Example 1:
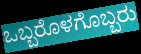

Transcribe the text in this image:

ಒಬ್ಬರೊಳಗೊಬ್ಬರು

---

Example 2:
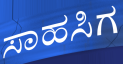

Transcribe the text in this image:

ಸಾಹಸಿಗ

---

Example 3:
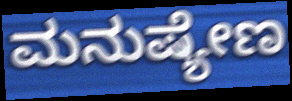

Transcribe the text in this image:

ಮನುಷ್ಯೇಣ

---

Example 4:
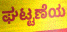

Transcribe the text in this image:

ಘಟ್ಟಣೆಯ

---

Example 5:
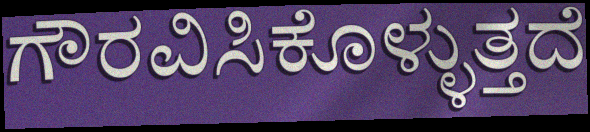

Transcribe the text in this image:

ಗೌರವಿಸಿಕೊಳ್ಳುತ್ತದೆ